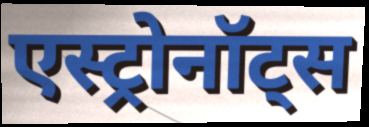
एस्ट्रोनॉट्स